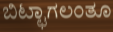
ಬಿಟ್ಟಾಗಲಂತೂ